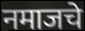
नमाजचे